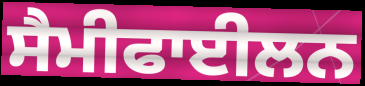
ਸੈਮੀਫਾਈਲਨ